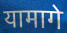
यामागे